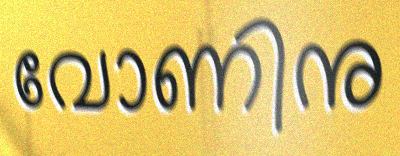
വോണിനു